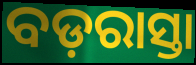
ବଡ଼ରାସ୍ତା